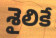
శైలికే